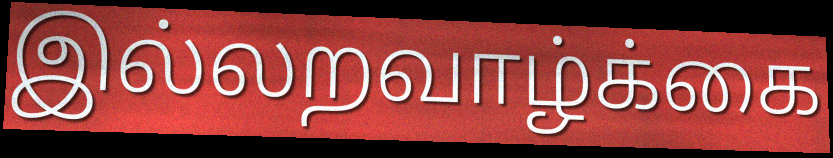
இல்லறவாழ்க்கை